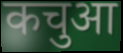
कचुआ